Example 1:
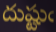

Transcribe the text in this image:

దుష్టుఁ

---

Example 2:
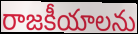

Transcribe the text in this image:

రాజకీయాలను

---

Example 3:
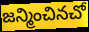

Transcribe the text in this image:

జన్మించినచో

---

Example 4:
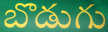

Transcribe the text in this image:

బొడుగు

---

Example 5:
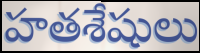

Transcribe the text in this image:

హతశేషులు